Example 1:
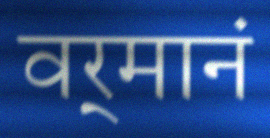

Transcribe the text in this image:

वर्मानं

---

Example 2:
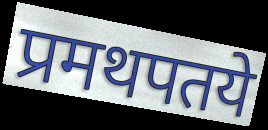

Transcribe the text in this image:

प्रमथपतये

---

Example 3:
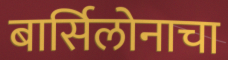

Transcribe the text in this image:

बार्सिलोनाचा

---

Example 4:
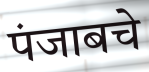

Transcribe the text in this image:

पंजाबचे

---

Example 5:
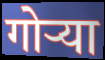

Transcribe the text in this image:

गोऱ्या